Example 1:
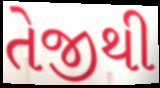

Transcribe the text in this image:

તેજીથી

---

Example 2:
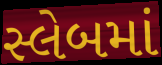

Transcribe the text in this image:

સ્લેબમાં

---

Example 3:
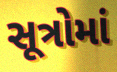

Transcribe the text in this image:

સૂત્રોમાં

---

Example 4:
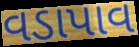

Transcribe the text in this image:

વડાપાવ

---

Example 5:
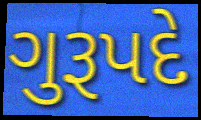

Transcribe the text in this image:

ગુરૂપદે